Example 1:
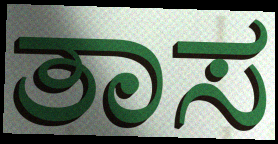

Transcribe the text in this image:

ತಾಸ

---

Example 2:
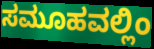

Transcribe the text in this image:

ಸಮೂಹವಲ್ಲಿಂ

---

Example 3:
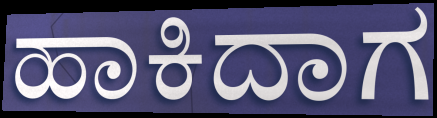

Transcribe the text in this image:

ಹಾಕಿದಾಗ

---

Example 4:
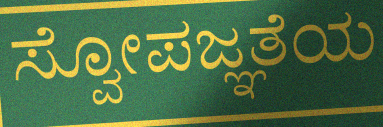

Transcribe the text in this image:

ಸ್ವೋಪಜ್ಞತೆಯ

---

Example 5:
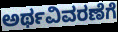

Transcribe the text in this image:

ಅರ್ಥವಿವರಣೆಗೆ